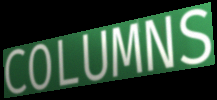
COLUMNS